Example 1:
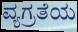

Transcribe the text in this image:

ವ್ಯಗ್ರತೆಯ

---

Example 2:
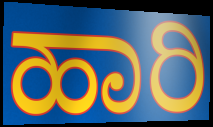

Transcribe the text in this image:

ಹಾರಿ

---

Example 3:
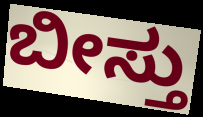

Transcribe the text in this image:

ಬೀಸ್ತು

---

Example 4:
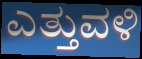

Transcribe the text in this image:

ಎತ್ತುವಳಿ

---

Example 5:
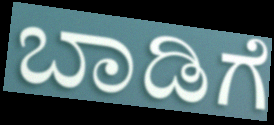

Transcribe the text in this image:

ಬಾಡಿಗೆ